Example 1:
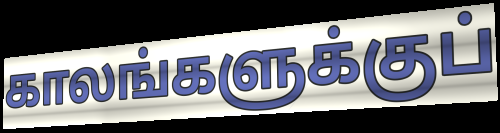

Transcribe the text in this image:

காலங்களுக்குப்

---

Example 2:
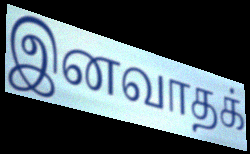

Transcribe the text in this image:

இனவாதக்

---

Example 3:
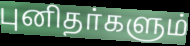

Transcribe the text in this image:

புனிதர்களும்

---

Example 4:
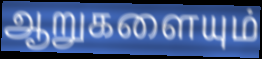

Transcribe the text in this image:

ஆறுகளையும்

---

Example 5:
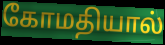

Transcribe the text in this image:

கோமதியால்